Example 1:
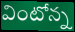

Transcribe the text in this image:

వింటోన్న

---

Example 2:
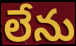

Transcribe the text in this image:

లేను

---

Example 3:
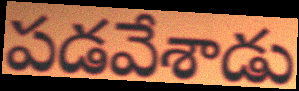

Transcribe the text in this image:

పడవేశాడు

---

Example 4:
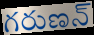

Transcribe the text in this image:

గరుణన్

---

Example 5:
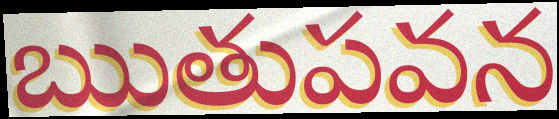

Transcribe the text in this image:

ఋతుపవన